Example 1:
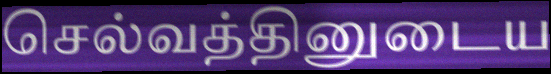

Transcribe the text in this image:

செல்வத்தினுடைய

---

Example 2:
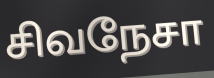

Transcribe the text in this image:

சிவநேசா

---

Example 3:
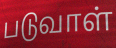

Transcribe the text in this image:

படுவாள்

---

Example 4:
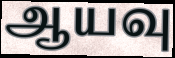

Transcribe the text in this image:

ஆயவு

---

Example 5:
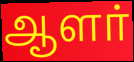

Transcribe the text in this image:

ஆளர்